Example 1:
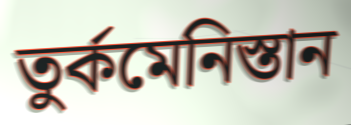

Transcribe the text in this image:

তুৰ্কমেনিস্তান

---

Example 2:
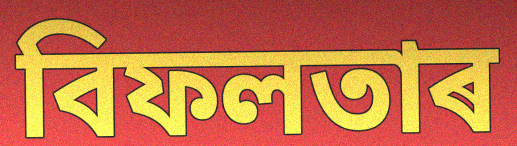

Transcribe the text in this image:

বিফলতাৰ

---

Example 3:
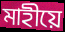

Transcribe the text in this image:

মাহীয়ে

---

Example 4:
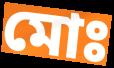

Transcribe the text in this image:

মোঃ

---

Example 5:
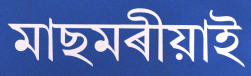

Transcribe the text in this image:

মাছমৰীয়াই